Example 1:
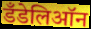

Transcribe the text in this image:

डँडेलिऑन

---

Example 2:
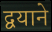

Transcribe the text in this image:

द्वयाने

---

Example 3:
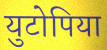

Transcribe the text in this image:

युटोपिया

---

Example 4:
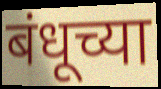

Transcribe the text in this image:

बंधूच्या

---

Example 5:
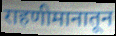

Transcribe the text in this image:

राहणीमानातून